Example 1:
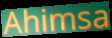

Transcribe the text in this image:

Ahimsa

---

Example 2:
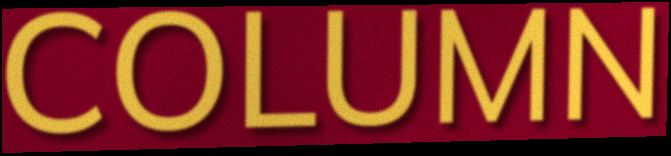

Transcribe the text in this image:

COLUMN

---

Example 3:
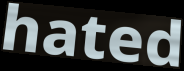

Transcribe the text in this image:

hated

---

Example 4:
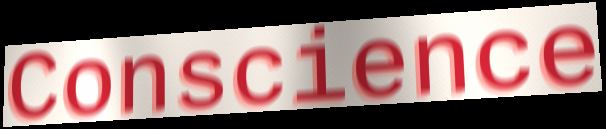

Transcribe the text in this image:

Conscience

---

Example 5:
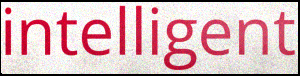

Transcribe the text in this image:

intelligent